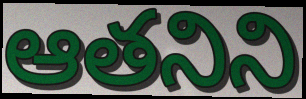
ఆతనిని